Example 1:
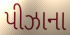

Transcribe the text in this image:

પીઝાના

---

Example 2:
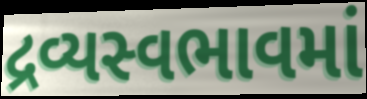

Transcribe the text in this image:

દ્રવ્યસ્વભાવમાં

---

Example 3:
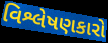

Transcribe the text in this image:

વિશ્લેષણકારો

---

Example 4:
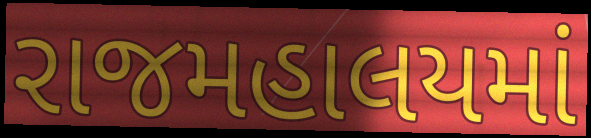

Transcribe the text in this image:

રાજમહાલયમાં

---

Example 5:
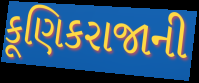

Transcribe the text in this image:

કૂણિકરાજાની